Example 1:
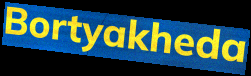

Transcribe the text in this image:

Bortyakheda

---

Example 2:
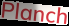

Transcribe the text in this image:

Planch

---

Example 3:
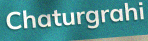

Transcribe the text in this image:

Chaturgrahi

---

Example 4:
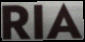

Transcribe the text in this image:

RIA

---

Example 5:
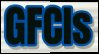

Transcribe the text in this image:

GFCIs